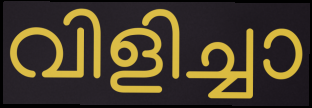
വിളിച്ചാ